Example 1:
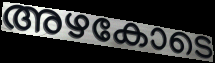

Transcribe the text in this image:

അഴകോടെ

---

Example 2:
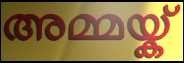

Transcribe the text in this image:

അമ്മയ്ക്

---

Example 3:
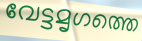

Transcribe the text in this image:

വേട്ടമൃഗത്തെ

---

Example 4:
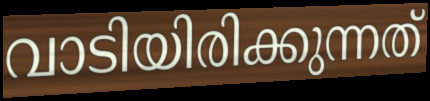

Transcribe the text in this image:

വാടിയിരിക്കുന്നത്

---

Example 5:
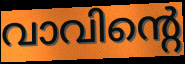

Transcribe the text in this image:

വാവിന്റെ